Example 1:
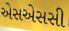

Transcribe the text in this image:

એસએસસી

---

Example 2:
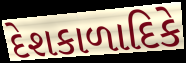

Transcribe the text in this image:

દેશકાળાદિકે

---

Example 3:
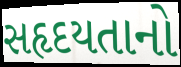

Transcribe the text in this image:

સહૃદયતાનો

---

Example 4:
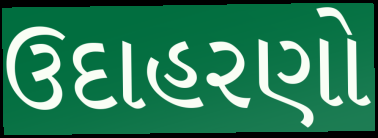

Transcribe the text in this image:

ઉદાહરણો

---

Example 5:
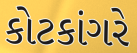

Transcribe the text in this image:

કોટકાંગરે